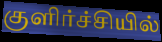
குளிர்ச்சியில்